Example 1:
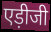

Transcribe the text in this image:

एड़ीजी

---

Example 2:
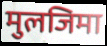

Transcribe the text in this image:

मुलजिमा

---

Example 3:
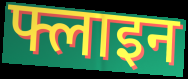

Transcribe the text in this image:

फ्लाइन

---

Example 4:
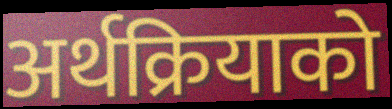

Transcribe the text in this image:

अर्थक्रियाको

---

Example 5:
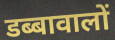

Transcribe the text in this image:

डब्बावालों